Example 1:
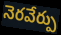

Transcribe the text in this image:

నెరవేర్పు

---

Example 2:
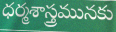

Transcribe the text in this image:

ధర్మశాస్త్రమునకు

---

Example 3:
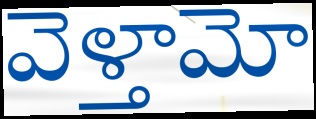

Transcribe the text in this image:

వెళ్తామో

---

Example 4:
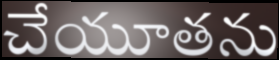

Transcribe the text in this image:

చేయూతను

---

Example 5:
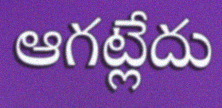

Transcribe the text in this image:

ఆగట్లేదు